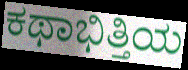
ಕಥಾಭಿತ್ತಿಯ